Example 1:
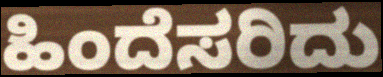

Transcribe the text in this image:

ಹಿಂದೆಸರಿದು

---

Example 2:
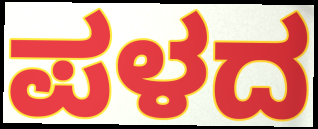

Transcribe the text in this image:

ಪಳದ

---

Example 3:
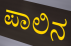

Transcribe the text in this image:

ಪಾಲಿನ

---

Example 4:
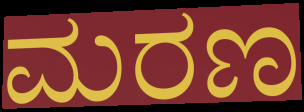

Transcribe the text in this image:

ಮರಣ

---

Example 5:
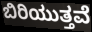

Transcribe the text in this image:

ಬಿರಿಯುತ್ತವೆ